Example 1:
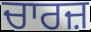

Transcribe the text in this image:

ਚਾਰਜ਼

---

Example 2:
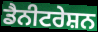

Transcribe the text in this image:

ਡੈਨੀਟਰੇਸ਼ਨ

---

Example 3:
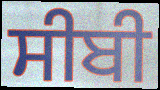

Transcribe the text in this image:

ਸੀਬੀ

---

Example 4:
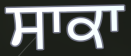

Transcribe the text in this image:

ਸਾਕਾ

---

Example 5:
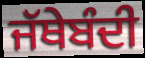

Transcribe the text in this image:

ਜੱਥੇਬੰਦੀ